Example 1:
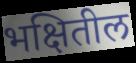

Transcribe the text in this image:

भक्षितील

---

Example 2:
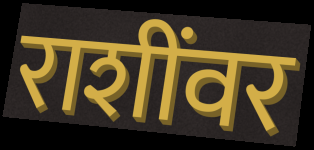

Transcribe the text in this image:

राशींवर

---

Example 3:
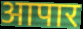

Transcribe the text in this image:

आपार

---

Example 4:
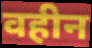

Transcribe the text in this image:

वहीन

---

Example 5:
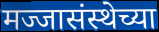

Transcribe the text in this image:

मज्जासंस्थेच्या